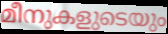
മീനുകളുടെയും